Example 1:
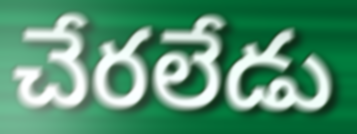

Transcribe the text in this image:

చేరలేడు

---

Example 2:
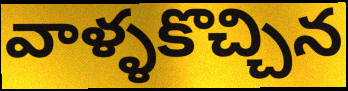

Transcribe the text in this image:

వాళ్ళకొచ్చిన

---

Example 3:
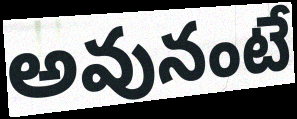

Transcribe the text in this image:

అవునంటే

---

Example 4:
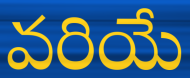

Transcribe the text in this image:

వరియే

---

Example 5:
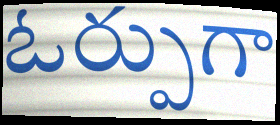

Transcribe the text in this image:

ఓర్పుగా